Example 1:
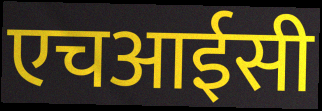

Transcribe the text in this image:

एचआईसी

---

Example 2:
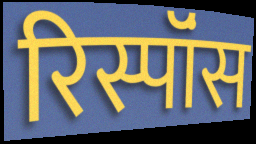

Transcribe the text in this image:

रिस्पॉंस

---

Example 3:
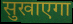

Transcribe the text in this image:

सुखाएगा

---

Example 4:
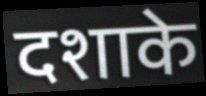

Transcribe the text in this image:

दशाके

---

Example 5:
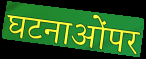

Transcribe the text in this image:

घटनाओंपर